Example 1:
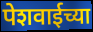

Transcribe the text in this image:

पेशवाईच्या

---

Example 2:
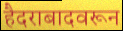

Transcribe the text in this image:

हैदराबादवरून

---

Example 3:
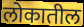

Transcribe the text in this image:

लोकातील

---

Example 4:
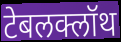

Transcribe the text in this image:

टेबलक्लॉथ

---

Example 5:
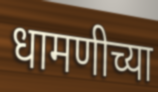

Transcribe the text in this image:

धामणीच्या